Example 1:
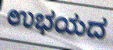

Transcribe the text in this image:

ಉಭಯದ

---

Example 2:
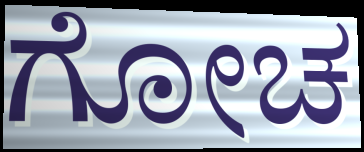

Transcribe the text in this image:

ಗೋಚ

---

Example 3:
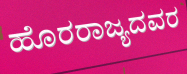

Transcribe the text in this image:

ಹೊರರಾಜ್ಯದವರ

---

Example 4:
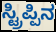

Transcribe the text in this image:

ಸ್ಟ್ರಿಪ್ಪಿನ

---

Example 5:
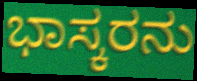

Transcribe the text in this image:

ಭಾಸ್ಕರನು